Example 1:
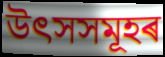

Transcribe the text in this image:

উৎসসমূহৰ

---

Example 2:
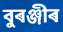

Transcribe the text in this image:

বুৰঞ্জীৰ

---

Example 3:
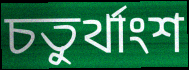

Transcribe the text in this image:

চতুৰ্থাংশ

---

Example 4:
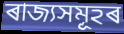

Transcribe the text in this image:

ৰাজ্যসমূহৰ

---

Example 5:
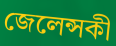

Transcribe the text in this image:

জেলেন্সকী